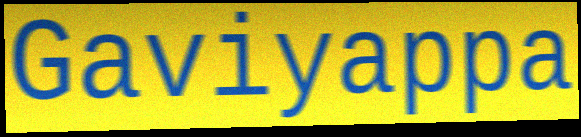
Gaviyappa